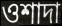
ওশাদা